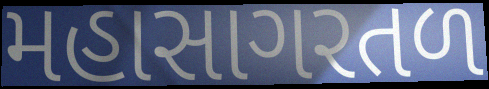
મહાસાગરતળ